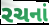
રચનાં